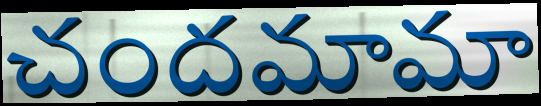
చందమామా